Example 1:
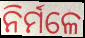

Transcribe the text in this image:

ନିର୍ମଳେ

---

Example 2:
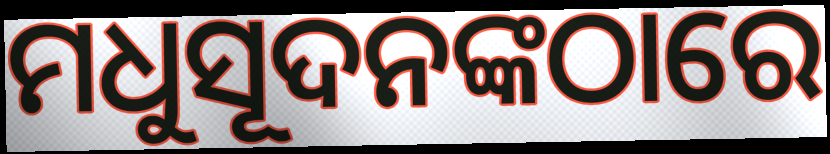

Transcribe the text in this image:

ମଧୁସୂଦନଙ୍କଠାରେ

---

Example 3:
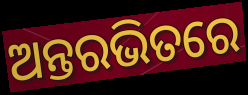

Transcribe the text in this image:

ଅନ୍ତରଭିତରେ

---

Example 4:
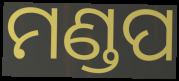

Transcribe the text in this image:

ମଣ୍ଡପ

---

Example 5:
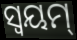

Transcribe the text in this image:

ସ୍ୱୟମ୍